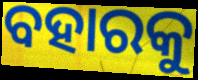
ବହାରକୁ